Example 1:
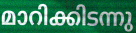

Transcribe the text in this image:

മാറിക്കിടന്നു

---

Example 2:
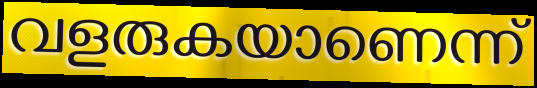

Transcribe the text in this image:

വളരുകയാണെന്ന്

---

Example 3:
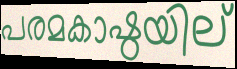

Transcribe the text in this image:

പരമകാഷ്ഠയില്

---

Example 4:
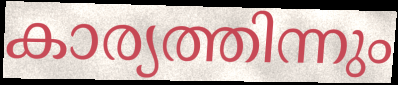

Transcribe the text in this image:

കാര്യത്തിന്നും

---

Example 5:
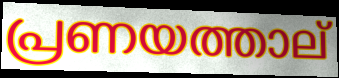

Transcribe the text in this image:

പ്രണയത്താല്